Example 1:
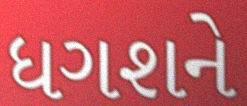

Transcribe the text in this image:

ધગશને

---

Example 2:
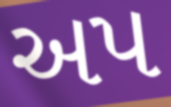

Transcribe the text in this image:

અપ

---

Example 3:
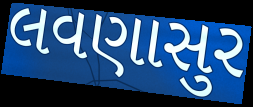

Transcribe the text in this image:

લવણાસુર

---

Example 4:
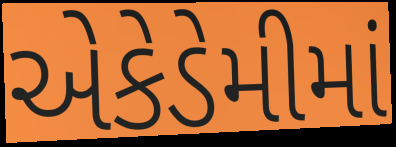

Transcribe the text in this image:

એકેડેમીમાં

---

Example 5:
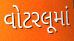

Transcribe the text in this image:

વોટરલૂમાં